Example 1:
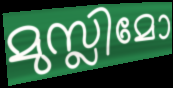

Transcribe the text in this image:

മുസ്ലിമോ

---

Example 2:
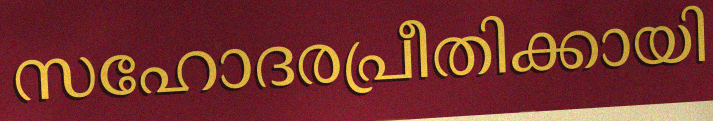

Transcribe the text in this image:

സഹോദരപ്രീതിക്കായി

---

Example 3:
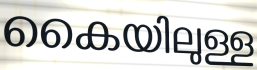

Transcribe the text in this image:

കൈയിലുള്ള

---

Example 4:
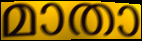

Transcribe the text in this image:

മാതാ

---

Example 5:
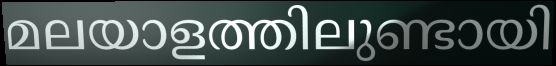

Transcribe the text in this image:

മലയാളത്തിലുണ്ടായി